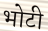
भोटी